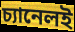
চ্যানেলই